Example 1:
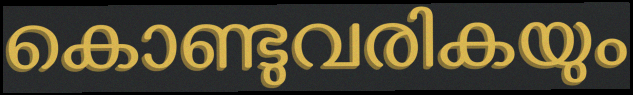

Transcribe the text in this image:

കൊണ്ടുവരികയും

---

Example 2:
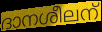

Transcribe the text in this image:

ദാനശീലന്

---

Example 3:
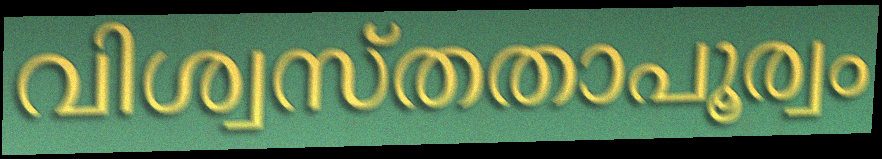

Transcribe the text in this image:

വിശ്വസ്തതാപൂര്വം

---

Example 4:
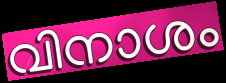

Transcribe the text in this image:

വിനാശം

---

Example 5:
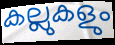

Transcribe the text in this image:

കല്ലുകളും